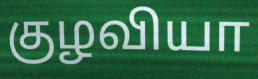
குழவியா